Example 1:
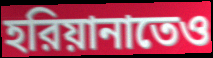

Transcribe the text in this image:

হরিয়ানাতেও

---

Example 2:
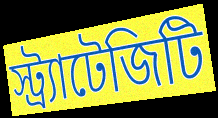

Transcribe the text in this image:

স্ট্র্যাটেজিটি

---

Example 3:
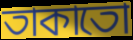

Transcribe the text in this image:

তাকাতো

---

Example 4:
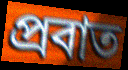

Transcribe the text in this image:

প্রবাত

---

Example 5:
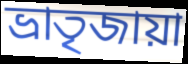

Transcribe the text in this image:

ভ্রাতৃজায়া